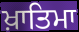
ਖ਼ਾਤਿਮਾ